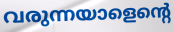
വരുന്നയാളെന്റെ